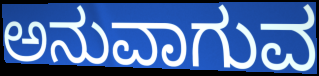
ಅನುವಾಗುವ